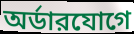
অর্ডারযোগে